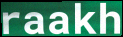
raakh